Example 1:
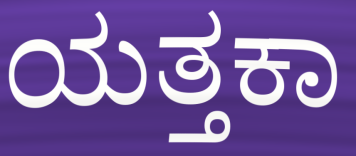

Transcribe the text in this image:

ಯತ್ತಕಾ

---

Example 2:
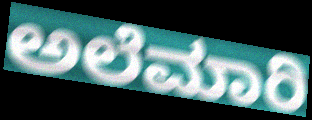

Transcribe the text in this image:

ಅಲೆಮಾರಿ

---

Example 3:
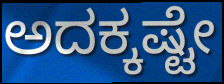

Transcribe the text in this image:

ಅದಕ್ಕಷ್ಟೇ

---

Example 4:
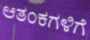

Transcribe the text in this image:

ಆತಂಕಗಳಿಗೆ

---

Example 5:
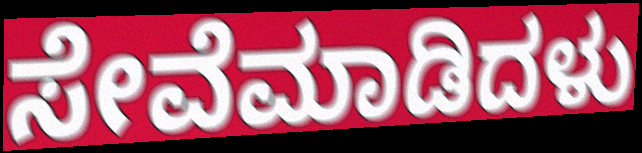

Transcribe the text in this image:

ಸೇವೆಮಾಡಿದಳು